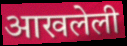
आखलेली